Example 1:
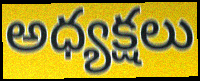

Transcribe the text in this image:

అధ్యక్షలు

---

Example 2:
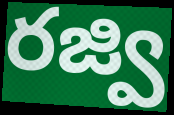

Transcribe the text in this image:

రజ్వి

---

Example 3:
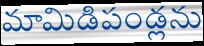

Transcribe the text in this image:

మామిడిపండ్లను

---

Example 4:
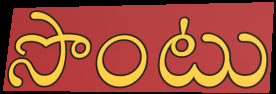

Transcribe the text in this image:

సొంటు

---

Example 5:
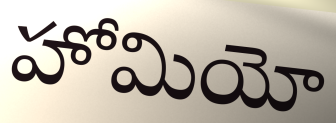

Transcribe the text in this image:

హోమియో